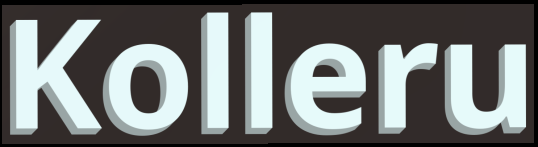
Kolleru